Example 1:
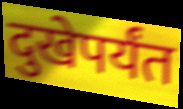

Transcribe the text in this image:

दुखेपर्यंत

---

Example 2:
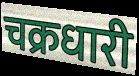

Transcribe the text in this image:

चक्रधारी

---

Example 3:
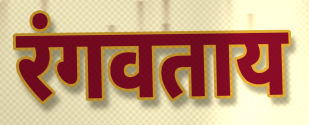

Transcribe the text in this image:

रंगवताय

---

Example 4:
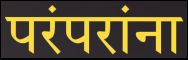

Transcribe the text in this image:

परंपरांना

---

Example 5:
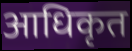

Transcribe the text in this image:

आधिकृत